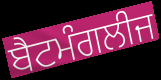
ਬੈਟਮੰਗਲੀਜ